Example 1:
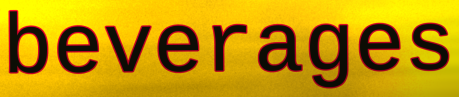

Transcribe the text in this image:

beverages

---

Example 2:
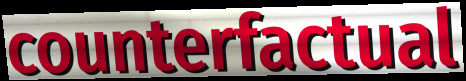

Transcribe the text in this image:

counterfactual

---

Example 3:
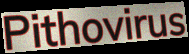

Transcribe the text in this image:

Pithovirus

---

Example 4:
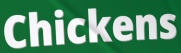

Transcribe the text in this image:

Chickens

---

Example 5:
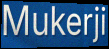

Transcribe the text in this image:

Mukerji